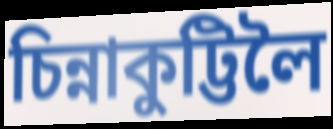
চিন্নাকুট্টিলৈ